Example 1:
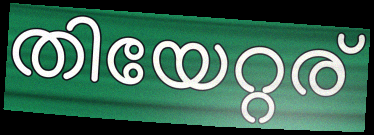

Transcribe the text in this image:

തിയേറ്റര്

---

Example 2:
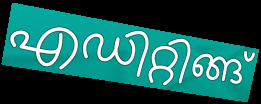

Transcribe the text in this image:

എഡിറ്റിങ്ങ്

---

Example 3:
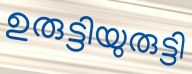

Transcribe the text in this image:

ഉരുട്ടിയുരുട്ടി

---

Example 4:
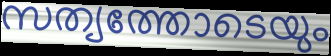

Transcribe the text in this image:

സത്യത്തോടെയും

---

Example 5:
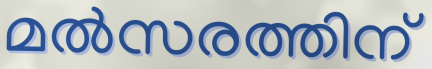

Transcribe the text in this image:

മൽസരത്തിന്